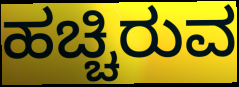
ಹಚ್ಚಿರುವ